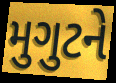
મુગુટને